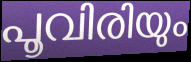
പൂവിരിയും